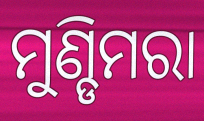
ମୁଣ୍ଡିମରା